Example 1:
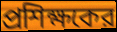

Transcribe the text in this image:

প্রশিক্ষকের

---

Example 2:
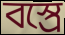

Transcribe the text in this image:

বস্ত্রে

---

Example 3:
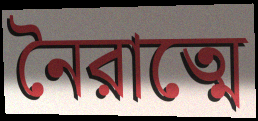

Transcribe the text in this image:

নৈরাত্মে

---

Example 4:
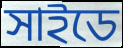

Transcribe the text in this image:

সাইডে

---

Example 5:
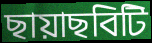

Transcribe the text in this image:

ছায়াছবিটি